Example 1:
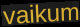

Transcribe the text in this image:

vaikum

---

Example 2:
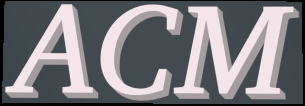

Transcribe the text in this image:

ACM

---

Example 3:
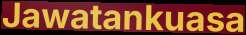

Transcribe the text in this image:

Jawatankuasa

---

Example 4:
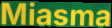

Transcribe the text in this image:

Miasma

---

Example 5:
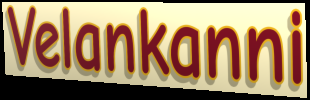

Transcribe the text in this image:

Velankanni